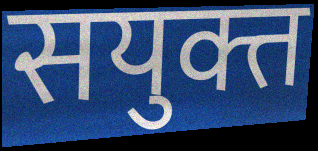
सयुक्त